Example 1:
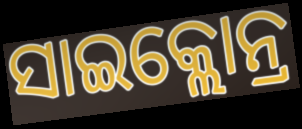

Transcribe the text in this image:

ସାଇକ୍ଲୋନ୍ର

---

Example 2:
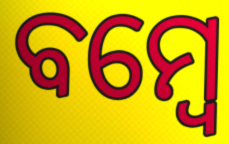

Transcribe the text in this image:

ବମ୍ୱେ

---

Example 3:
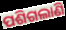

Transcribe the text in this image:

ପଶିଗଲାଣି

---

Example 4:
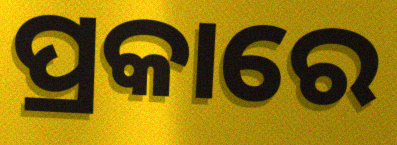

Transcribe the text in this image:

ପ୍ରକାରେ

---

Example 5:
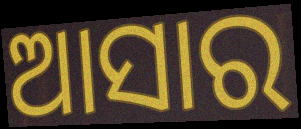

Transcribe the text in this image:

ଆସାର